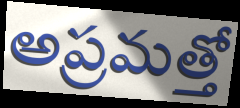
అప్రమత్తో